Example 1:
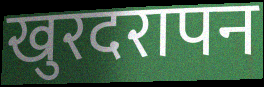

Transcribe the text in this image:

खुरदरापन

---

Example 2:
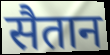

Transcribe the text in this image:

सैतान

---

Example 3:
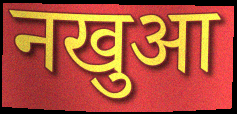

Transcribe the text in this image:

नखुआ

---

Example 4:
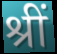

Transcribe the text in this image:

श्रीं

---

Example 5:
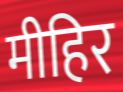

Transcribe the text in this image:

मीहिर